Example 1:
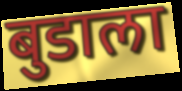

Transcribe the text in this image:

बुडाला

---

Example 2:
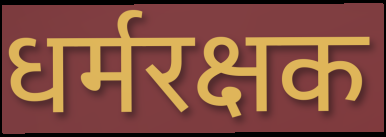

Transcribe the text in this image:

धर्मरक्षक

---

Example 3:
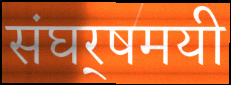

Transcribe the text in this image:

संघर्षमयी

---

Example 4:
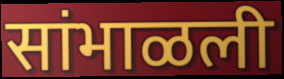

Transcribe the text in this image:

सांभाळली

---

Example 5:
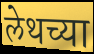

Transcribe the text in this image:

लेथच्या